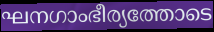
ഘനഗാംഭീര്യത്തോടെ